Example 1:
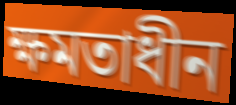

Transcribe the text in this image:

ক্ষমতাধীন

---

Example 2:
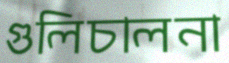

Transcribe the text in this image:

গুলিচালনা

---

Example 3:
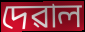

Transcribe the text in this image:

দেৱাল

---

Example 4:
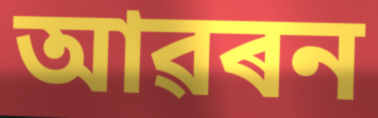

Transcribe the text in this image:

আৱৰন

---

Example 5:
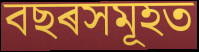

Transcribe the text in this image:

বছৰসমূহত